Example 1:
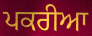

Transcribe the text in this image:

ਪਕਰੀਆ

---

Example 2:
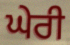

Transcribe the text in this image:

ਘੇਰੀ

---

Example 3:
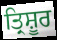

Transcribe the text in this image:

ਤ੍ਰਿਸ਼ੂਰ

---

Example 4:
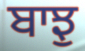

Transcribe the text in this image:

ਬਾਝੁ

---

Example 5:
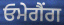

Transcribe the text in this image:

ਓਮੇਗੈਂਗ